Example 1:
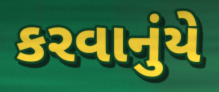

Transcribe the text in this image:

કરવાનુંયે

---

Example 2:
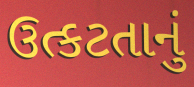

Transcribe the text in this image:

ઉત્કટતાનું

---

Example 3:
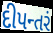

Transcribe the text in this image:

દીપન્તરં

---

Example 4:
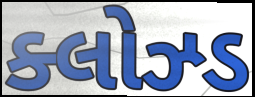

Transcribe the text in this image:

ક્લોઝ્ડ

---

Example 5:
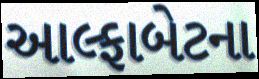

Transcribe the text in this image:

આલ્ફાબેટના